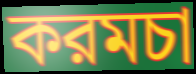
করমচা